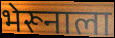
भेरूनाला